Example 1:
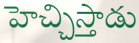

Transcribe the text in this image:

హెచ్చిస్తాడు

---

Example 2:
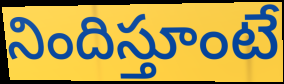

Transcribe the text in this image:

నిందిస్తూంటే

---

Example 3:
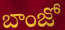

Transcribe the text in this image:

బాంజో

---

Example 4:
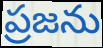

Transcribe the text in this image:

ప్రజను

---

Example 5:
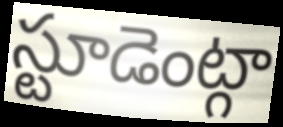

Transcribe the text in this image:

స్టూడెంట్గా